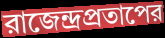
রাজেন্দ্রপ্রতাপের